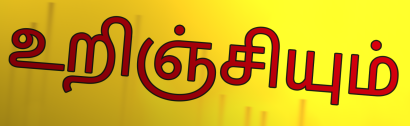
உறிஞ்சியும்